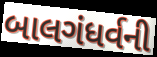
બાલગંધર્વની